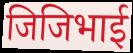
जिजिभाई